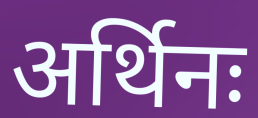
अर्थिनः